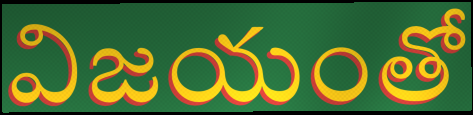
విజయంతో